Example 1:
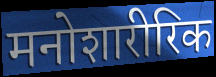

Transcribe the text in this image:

मनोशारीरिक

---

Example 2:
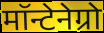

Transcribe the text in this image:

मॉन्टेनेग्रो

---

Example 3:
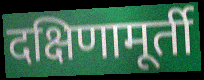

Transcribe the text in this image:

दक्षिणामूर्ती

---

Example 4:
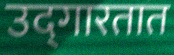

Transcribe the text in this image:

उद्‌गारतात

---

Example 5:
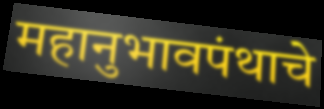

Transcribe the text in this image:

महानुभावपंथाचे